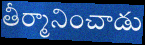
తీర్మానించాడు